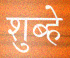
शुब्हे